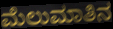
ಮೆಲುಮಾತಿನ